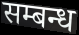
सम्बन्ध